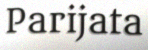
Parijata